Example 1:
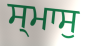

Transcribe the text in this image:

ਸ੍ਮਾਸੁ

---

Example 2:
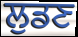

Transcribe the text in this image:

ਲੁਡਣ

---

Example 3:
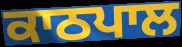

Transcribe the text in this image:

ਕਾਠਪਾਲ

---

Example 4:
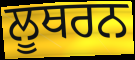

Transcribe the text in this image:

ਲੂਥਰਨ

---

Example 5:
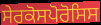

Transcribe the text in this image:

ਸੇਰਕੋਸਪੋਰੋਸਿਸ